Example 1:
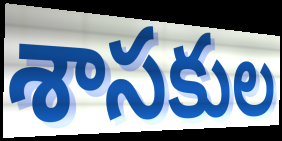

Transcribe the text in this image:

శాసకుల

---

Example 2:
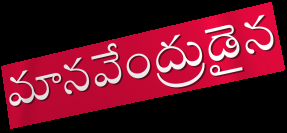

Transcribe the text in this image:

మానవేంద్రుడైన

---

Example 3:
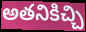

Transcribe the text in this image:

అతనికిచ్చి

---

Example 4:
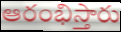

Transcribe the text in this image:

ఆరంభిస్తారు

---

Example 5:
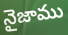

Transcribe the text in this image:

నైజాము